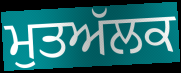
ਮੁਤਅੱਲਕ